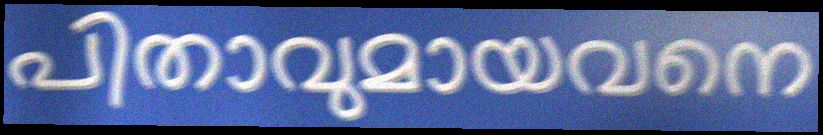
പിതാവുമായവനെ